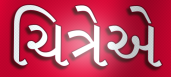
ચિત્રેએ